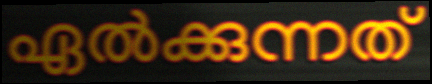
ഏൽക്കുന്നത്